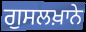
ਗੁਸਲਖ਼ਾਨੇ